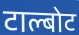
टाल्बोट